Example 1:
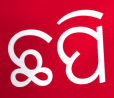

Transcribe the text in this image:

ଛପି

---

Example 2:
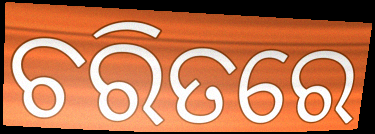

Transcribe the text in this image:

ଚରିତରେ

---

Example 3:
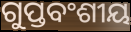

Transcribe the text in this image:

ଗୁପ୍ତବଂଶୀୟ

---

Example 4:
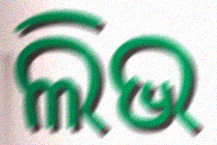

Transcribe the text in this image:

ଲିଭ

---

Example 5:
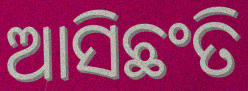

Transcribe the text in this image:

ଆସିଛଂତି